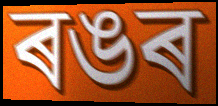
ৰঙৰ